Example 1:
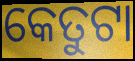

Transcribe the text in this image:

କେତୁଟା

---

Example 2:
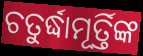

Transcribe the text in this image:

ଚତୁର୍ଦ୍ଧାମୂର୍ତ୍ତିଙ୍କ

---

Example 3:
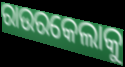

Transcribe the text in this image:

ରାଉରକେଲାକୁ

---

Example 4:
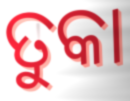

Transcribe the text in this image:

ତୁକା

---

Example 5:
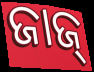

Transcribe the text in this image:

ଜାଜ୍